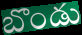
బొండు